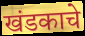
खंडकाचे